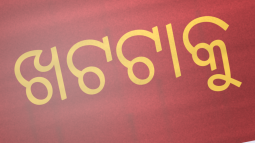
ଖଟଟାକୁ